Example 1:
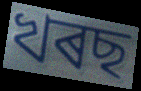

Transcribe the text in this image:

খৰছ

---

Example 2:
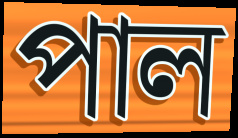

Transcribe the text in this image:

পাল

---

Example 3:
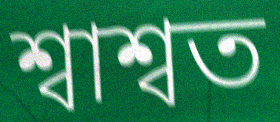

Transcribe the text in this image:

শ্বাশ্বত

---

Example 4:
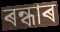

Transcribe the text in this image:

ৰন্ধাৰ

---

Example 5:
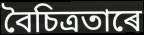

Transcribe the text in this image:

বৈচিত্ৰতাৰে